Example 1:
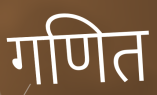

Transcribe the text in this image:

गणित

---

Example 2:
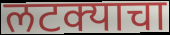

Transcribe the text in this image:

लटक्याचा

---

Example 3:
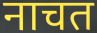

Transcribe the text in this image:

नाचत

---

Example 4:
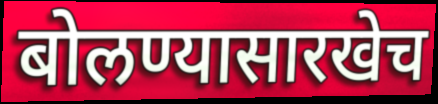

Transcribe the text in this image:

बोलण्यासारखेच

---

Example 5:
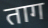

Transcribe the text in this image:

ताग